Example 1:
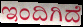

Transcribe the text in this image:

ಇಂದಿಗಿದೆ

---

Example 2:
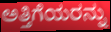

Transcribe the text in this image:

ಅತ್ತಿಗೆಯರನ್ನು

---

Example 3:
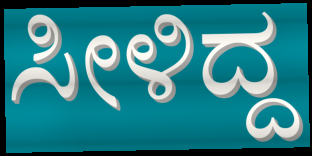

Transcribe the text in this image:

ಸೀಳಿದ್ದ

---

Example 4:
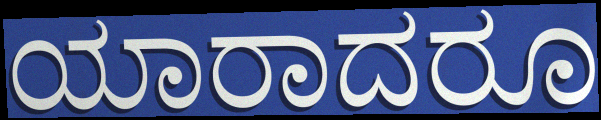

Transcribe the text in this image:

ಯಾರಾದರೂ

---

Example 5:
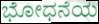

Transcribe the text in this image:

ಭೋಧನೆಯ